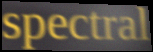
spectral